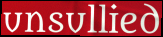
unsullied